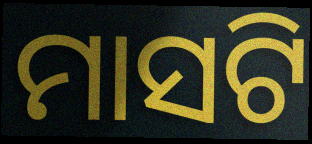
ମାସଟି